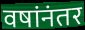
वषांनंतर